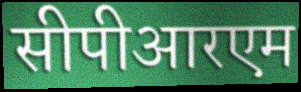
सीपीआरएम